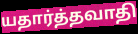
யதார்த்தவாதி